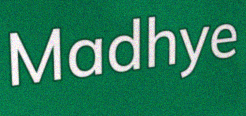
Madhye